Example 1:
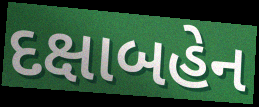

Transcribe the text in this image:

દક્ષાબહેન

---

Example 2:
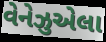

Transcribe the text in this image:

વેનેઝુએલા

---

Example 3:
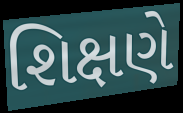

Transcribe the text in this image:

શિક્ષણે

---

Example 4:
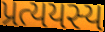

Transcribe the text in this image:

પ્રત્યયસ્ય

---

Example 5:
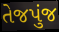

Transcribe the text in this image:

તેજપુંજ